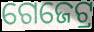
ଗେଜେଟ୍ର